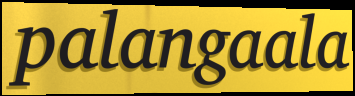
palangaala